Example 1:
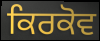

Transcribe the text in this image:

ਕਿਰਕੋਵ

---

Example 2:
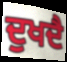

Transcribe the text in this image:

ਦੁਖਦੈ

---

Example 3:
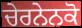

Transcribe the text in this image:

ਚੇਰਨੇਨਕੋ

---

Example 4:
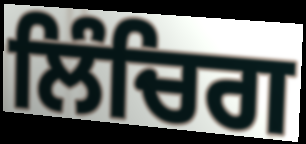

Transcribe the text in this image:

ਲਿੰਚਿਗ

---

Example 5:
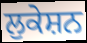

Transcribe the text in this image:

ਲੁਕੇਸ਼ਨ